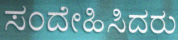
ಸಂದೇಹಿಸಿದರು